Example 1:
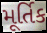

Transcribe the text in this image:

મૂર્તિક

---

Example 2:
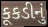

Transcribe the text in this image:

કૂકડીનું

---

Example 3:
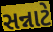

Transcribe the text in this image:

સન્નાટે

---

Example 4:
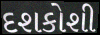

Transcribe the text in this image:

દશકોશી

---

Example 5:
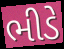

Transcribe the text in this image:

ભીડે